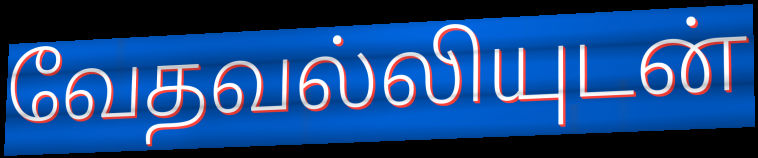
வேதவல்லியுடன்